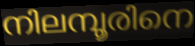
നിലമ്പൂരിനെ